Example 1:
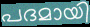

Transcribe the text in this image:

പദമായി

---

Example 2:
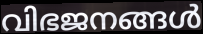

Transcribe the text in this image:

വിഭജനങ്ങൾ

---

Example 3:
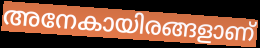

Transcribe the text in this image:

അനേകായിരങ്ങളാണ്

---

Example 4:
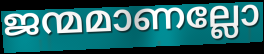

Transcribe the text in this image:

ജന്മമാണല്ലോ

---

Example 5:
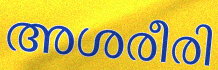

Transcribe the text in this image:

അശരീരി